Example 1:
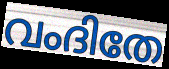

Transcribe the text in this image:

വംദിതേ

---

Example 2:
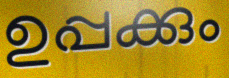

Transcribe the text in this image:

ഉപ്പക്കും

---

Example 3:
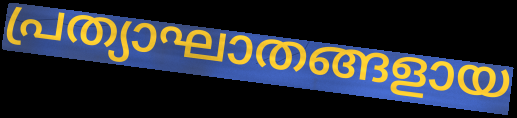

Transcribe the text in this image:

പ്രത്യാഘാതങ്ങളായ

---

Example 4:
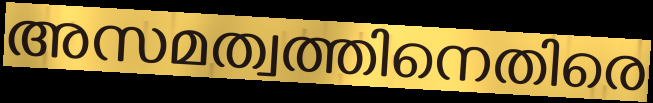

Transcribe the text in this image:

അസമത്വത്തിനെതിരെ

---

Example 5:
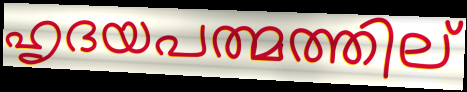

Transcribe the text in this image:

ഹൃദയപത്മത്തില്